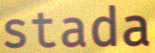
stada